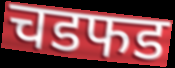
चडफड